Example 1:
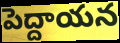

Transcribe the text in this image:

పెద్దాయన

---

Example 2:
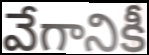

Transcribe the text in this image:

వేగానికీ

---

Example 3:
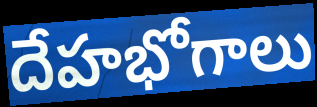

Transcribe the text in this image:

దేహభోగాలు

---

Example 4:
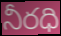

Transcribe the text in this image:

నీరధి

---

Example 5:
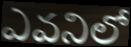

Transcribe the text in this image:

ఎవనిలో